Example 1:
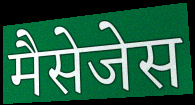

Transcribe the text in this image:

मैसेजेस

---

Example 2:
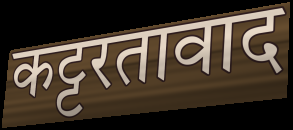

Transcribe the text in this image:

कट्टरतावाद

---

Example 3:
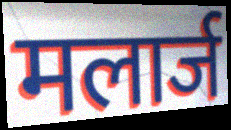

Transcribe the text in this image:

मलार्ज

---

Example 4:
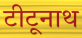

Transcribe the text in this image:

टीटूनाथ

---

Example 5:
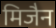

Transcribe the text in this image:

मिजैन